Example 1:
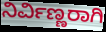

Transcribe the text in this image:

ನಿರ್ವಿಣ್ಣರಾಗಿ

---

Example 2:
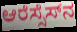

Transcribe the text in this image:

ಆರೆಸ್ಸೆಸ್‌ನ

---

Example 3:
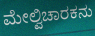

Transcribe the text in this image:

ಮೇಲ್ವಿಚಾರಕನು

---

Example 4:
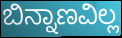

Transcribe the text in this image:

ಬಿನ್ನಾಣವಿಲ್ಲ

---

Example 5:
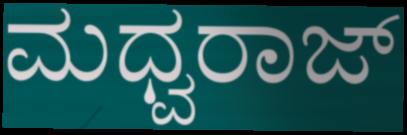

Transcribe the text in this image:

ಮಧ್ವರಾಜ್